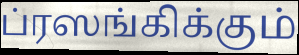
ப்ரஸங்கிக்கும்